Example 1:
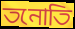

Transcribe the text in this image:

তনোতি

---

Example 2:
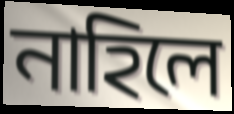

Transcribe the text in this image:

নাহিলে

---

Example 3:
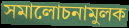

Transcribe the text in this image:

সমালোচনামুলক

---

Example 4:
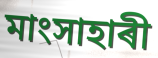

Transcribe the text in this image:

মাংসাহাৰী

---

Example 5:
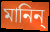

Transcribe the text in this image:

মানিন্